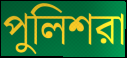
পুলিশরা